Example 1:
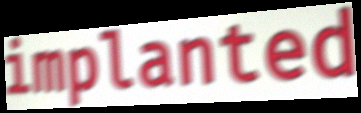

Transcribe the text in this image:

implanted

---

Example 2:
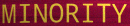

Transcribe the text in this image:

MINORITY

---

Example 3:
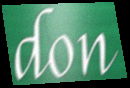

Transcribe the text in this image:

don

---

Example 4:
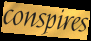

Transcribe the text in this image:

conspires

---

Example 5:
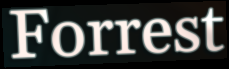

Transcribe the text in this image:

Forrest